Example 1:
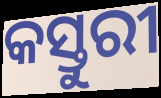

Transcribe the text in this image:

କସ୍ତୁରୀ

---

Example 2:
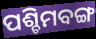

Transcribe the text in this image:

ପଶ୍ଚିମବଙ୍ଗ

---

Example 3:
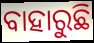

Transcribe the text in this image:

ବାହାରୁଛି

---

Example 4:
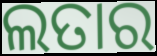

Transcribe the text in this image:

ଲତାର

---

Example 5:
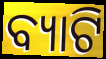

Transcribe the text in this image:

ବ୍ୟାଟି